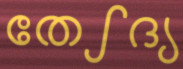
തേഽദ്യ